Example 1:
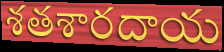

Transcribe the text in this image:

శతశారదాయ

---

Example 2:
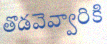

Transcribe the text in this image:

తొడవెవ్వారికి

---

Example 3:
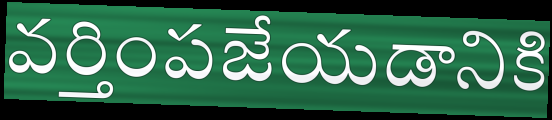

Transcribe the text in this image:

వర్తింపజేయడానికి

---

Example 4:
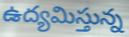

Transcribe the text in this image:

ఉద్యమిస్తున్న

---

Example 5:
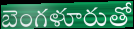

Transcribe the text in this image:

బెంగళూరుతో